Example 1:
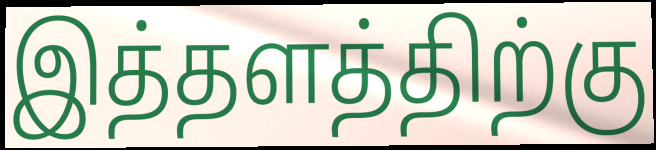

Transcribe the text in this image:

இத்தளத்திற்கு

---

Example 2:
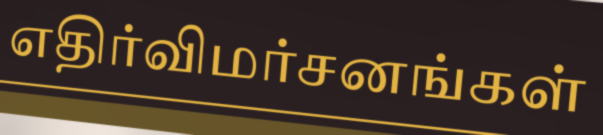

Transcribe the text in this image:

எதிர்விமர்சனங்கள்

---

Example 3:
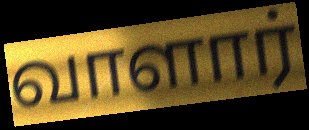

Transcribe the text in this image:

வாளார்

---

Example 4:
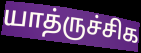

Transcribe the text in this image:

யாத்ருச்சிக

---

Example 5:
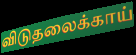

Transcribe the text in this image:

விடுதலைக்காய்